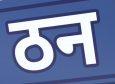
ठन